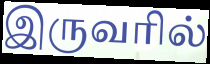
இருவரில்